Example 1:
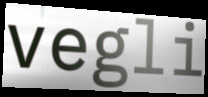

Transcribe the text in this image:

vegli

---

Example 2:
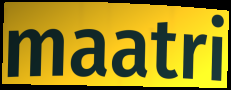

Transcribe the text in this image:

maatri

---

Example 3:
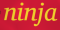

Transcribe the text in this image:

ninja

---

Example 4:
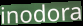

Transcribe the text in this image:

inodora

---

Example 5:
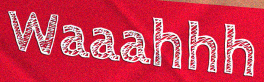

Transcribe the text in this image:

Waaahhh